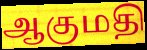
ஆகுமதி